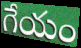
గేయం